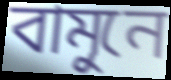
বামুনে